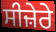
ਸੀਜ਼ੇਰੇ